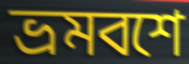
ভ্রমবশে